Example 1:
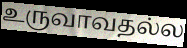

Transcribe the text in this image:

உருவாவதல்ல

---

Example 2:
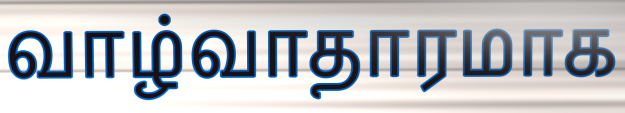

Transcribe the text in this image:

வாழ்வாதாரமாக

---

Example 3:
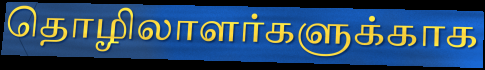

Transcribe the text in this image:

தொழிலாளர்களுக்காக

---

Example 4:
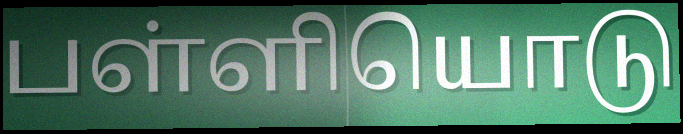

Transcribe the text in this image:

பள்ளியொடு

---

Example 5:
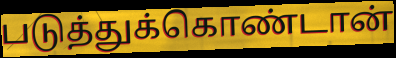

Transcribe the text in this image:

படுத்துக்கொண்டான்